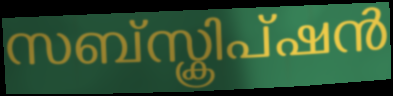
സബ്സ്ക്രിപ്ഷൻ